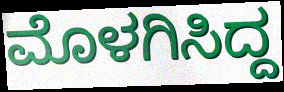
ಮೊಳಗಿಸಿದ್ದ